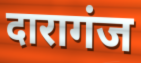
दारागंज